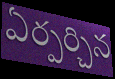
ఏర్పర్చిన